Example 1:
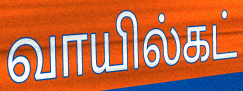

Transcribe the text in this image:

வாயில்கட்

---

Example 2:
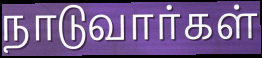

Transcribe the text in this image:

நாடுவார்கள்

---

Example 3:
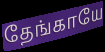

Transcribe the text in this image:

தேங்காயே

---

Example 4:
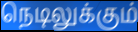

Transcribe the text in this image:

நெடிலுக்கும்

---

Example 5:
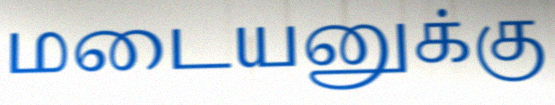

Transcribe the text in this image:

மடையனுக்கு